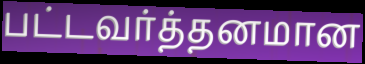
பட்டவர்த்தனமான